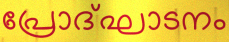
പ്രോദ്ഘാടനം